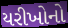
યરીખોનો